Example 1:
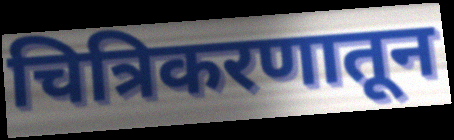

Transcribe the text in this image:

चित्रिकरणातून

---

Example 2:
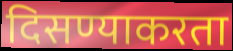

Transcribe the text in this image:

दिसण्याकरता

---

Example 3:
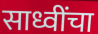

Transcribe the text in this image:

साध्वींचा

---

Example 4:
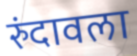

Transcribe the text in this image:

रुंदावला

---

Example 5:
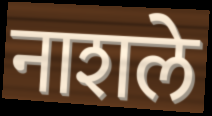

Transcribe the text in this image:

नाशले